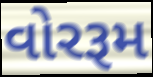
વોરરૂમ